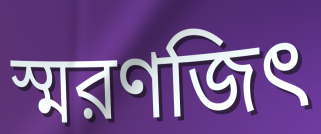
স্মরণজিৎ